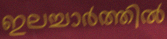
ഇലച്ചാർത്തിൽ